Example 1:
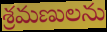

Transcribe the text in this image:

శ్రమణులను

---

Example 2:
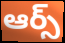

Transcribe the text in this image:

ఆర్స్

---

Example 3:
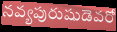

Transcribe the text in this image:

నవ్యపురుషుడెవరో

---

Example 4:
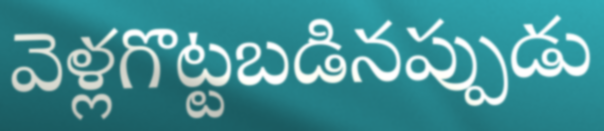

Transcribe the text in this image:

వెళ్లగొట్టబడినప్పుడు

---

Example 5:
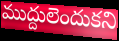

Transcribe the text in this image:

ముద్దులెందుకని